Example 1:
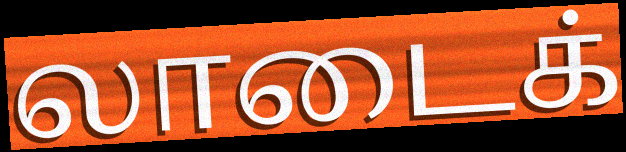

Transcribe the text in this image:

லாடைக்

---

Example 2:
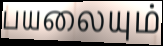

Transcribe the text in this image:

பயலையும்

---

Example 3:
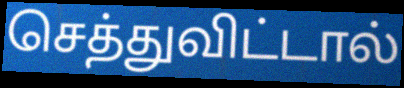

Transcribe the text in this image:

செத்துவிட்டால்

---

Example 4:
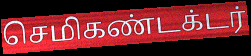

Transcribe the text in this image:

செமிகண்டக்டர்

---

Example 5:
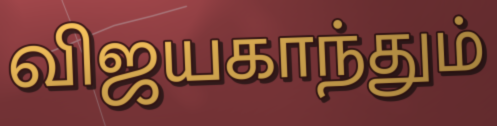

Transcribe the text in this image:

விஜயகாந்தும்